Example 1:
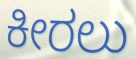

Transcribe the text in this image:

ಕೀರಲು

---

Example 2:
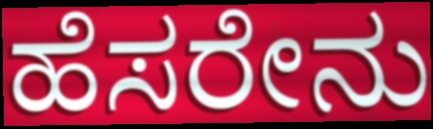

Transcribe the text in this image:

ಹೆಸರೇನು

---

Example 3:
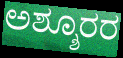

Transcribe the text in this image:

ಅಶ್ಶೂರರ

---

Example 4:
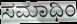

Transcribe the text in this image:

ಸಮಾಧಿಂ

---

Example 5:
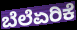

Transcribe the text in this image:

ಬೆಲೆಏರಿಕೆ